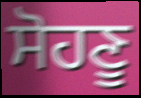
ਸੋਹਣੂ